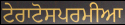
ਟੇਰਾਟੋਸਪਰਮੀਆ